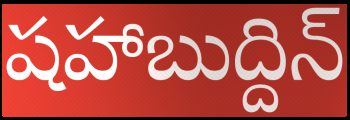
షహాబుద్దిన్